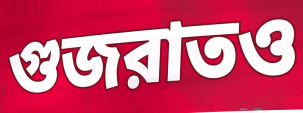
গুজরাতও